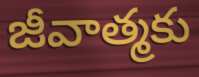
జీవాత్మకు